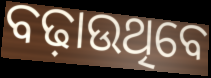
ବଢ଼ାଉଥିବେ